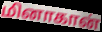
மினாகான்